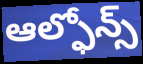
ఆల్ఫోన్స్